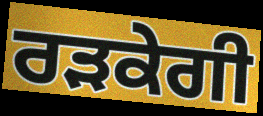
ਰੜਕੇਗੀ